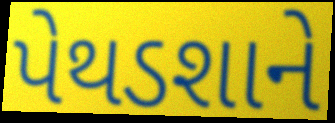
પેથડશાને